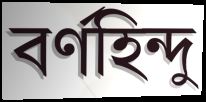
বৰ্ণহিন্দু